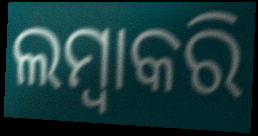
ଲମ୍ବାକରି